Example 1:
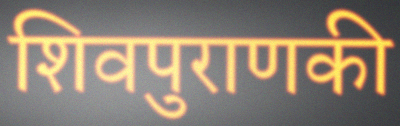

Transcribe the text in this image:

शिवपुराणकी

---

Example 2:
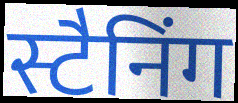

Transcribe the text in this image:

स्टैनिंग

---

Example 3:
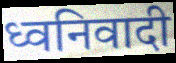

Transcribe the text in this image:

ध्वनिवादी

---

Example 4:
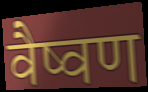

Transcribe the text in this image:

वैष्वण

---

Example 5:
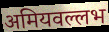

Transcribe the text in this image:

अमियवल्लभ